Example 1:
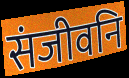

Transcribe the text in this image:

संजीवनि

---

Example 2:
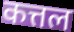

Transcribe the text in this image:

कत्तल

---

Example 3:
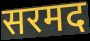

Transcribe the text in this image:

सरमद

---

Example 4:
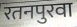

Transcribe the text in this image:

रतनपुरवा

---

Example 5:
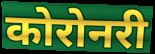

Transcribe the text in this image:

कोरोनरी